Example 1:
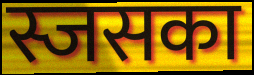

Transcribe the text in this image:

स्जसका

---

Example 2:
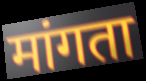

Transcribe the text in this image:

मांगता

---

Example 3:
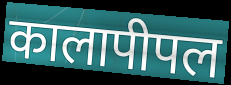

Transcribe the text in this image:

कालापीपल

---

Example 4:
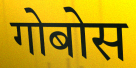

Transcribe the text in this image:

गोबोस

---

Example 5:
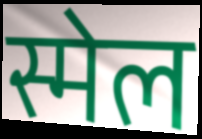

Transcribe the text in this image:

स्‍मेल